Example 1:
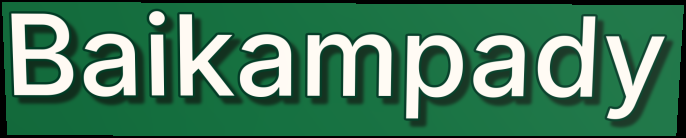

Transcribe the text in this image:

Baikampady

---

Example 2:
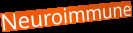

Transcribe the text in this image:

Neuroimmune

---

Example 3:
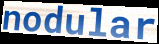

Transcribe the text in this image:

nodular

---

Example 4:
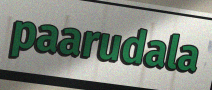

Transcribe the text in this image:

paarudala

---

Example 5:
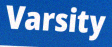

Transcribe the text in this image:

Varsity